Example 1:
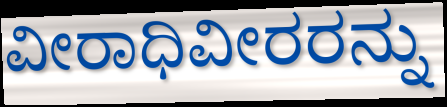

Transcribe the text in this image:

ವೀರಾಧಿವೀರರನ್ನು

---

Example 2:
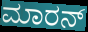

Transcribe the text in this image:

ಮಾರನ್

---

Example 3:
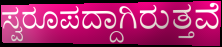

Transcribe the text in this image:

ಸ್ವರೂಪದ್ದಾಗಿರುತ್ತವೆ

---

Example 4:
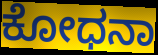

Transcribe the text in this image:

ಕೋಧನಾ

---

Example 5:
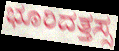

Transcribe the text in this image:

ಭೂರಿದತ್ತಸ್ಸ